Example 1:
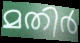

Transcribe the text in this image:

മതിർ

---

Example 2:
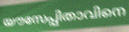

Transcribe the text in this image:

യൗസേപ്പിതാവിനെ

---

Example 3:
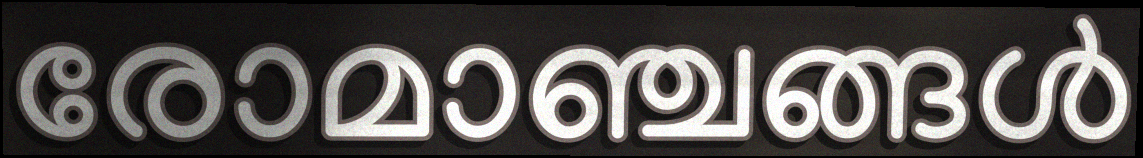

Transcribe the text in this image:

രോമാഞ്ചങ്ങൾ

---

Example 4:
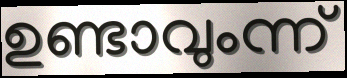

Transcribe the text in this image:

ഉണ്ടാവുംന്ന്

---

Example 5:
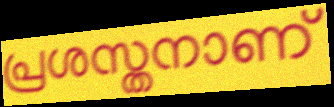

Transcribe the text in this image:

പ്രശസ്തനാണ്